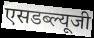
एसडब्ल्यूजी